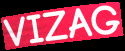
VIZAG